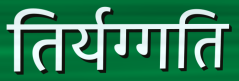
तिर्यग्गति